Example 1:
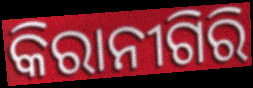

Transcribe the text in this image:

କିରାନୀଗିରି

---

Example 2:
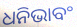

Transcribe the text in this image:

ଧନିଭାବଂ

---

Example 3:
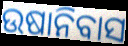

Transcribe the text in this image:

ଉଷାନିବାସ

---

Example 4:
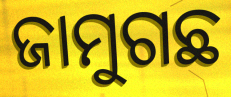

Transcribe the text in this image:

ଜାମୁଗଛ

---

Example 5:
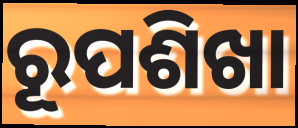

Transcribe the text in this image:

ରୂପଶିଖା